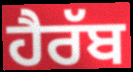
ਹੈਰੱਬ